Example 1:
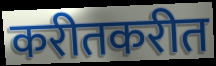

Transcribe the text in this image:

करीतकरीत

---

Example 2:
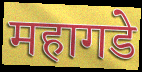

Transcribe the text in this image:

महागडे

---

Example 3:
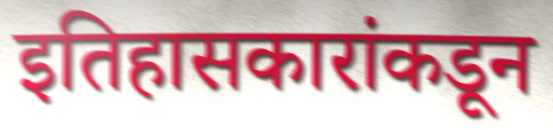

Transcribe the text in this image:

इतिहासकारांकडून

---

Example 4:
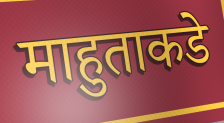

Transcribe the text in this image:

माहुताकडे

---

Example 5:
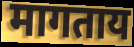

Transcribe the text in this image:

मागताय